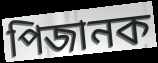
পিজানক